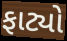
ફાટ્યો